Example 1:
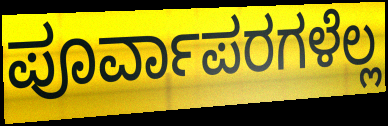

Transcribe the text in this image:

ಪೂರ್ವಾಪರಗಳೆಲ್ಲ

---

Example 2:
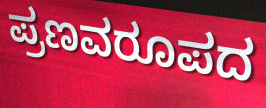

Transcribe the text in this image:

ಪ್ರಣವರೂಪದ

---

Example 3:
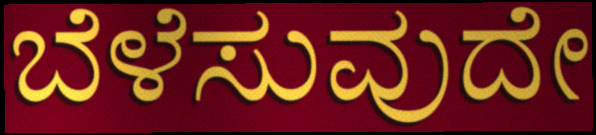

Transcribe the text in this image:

ಬೆಳೆಸುವುದೇ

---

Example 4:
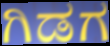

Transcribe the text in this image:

ಗಿಡಗ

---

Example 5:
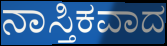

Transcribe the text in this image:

ನಾಸ್ತಿಕವಾದ